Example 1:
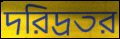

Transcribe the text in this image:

দরিদ্রতর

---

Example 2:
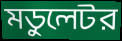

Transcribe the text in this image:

মডুলেটর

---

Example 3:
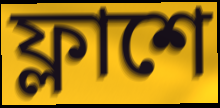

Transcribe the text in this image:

ফ্লাশে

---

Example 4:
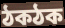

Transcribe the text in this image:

ঠকঠক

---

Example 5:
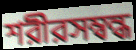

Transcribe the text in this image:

শরীরসম্বন্ধ